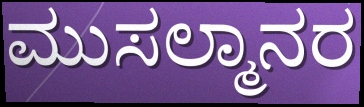
ಮುಸಲ್ಮಾನರ